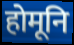
होमूनि